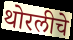
थोरलीचे